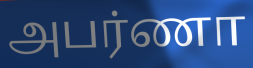
அபர்ணா